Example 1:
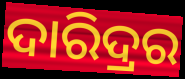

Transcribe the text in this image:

ଦାରିଦ୍ରର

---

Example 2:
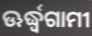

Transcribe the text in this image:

ଊର୍ଦ୍ଧ୍ୱଗାମୀ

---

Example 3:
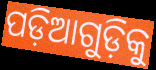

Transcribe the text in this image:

ପଡ଼ିଆଗୁଡ଼ିକୁ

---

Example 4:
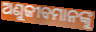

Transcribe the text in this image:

ଅଣୁଜୀବମାନଙ୍କୁ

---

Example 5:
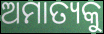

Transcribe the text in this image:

ଅମାତ୍ୟକୁ